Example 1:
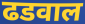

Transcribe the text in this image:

ढडवाल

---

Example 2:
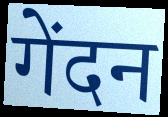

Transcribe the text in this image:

गेंदन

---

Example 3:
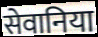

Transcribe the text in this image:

सेवानिया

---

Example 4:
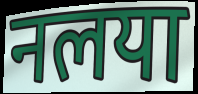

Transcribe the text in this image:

नलया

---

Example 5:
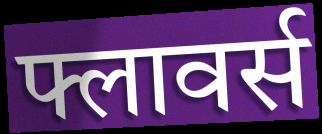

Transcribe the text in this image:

फ्लावर्स